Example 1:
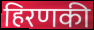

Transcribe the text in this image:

हिरणकी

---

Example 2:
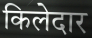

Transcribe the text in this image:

किलेदार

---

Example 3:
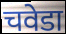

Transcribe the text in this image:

चवेडा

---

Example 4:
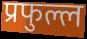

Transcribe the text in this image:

प्रफुल्ल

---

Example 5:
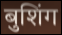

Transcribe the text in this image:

बुशिंग